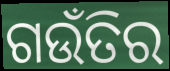
ଗଉଁତିର